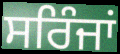
ਸਰਿੰਜਾਂ